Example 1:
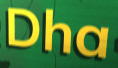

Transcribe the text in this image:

Dha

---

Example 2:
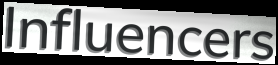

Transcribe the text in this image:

Influencers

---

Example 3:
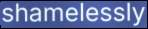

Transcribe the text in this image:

shamelessly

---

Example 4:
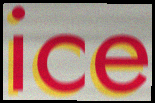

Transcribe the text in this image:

ice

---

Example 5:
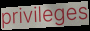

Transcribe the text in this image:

privileges